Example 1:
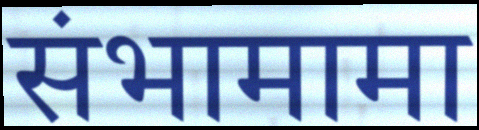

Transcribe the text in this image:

संभामामा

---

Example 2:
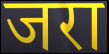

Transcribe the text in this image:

जरा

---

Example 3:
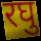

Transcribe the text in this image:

रघु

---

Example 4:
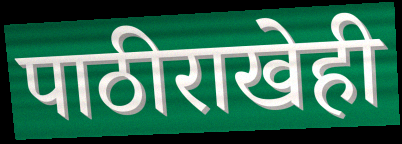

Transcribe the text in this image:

पाठीराखेही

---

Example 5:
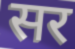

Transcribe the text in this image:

सर